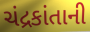
ચંદ્રકાંતાની